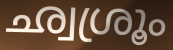
ഛ്വശ്രൂം